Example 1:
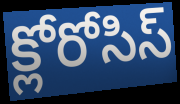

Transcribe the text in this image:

క్లోరోసిస్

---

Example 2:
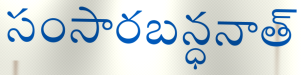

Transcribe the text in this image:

సంసారబన్ధనాత్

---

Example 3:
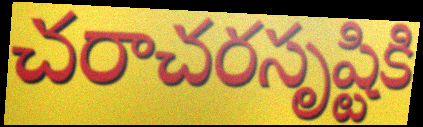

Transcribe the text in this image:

చరాచరసృష్టికి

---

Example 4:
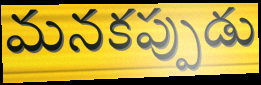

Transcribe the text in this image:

మనకప్పుడు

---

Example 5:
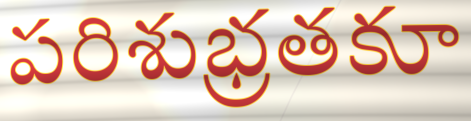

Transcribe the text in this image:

పరిశుభ్రతకూ